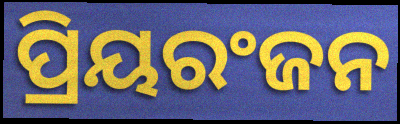
ପ୍ରିୟରଂଜନ